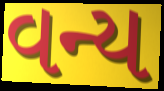
વન્ય